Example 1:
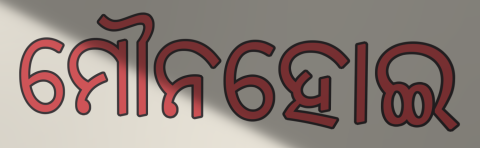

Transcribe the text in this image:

ମୌନହୋଇ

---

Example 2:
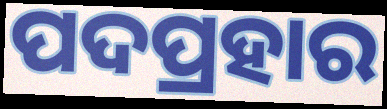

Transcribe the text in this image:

ପଦପ୍ରହାର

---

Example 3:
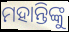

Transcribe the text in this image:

ମହାନ୍ତିଙ୍କୁ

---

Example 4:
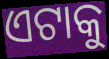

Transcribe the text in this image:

ଏଟାକୁ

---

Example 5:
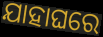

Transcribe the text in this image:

ଯାହାଘରେ